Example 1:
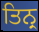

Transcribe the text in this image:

ਤਿਨ੍ਰ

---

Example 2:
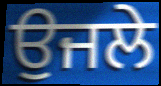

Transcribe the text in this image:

ਉਜਲੇ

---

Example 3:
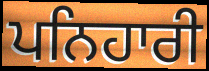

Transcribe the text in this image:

ਪਨਿਹਾਰੀ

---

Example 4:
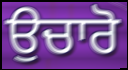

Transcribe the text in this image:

ਉਚਾਰੋ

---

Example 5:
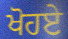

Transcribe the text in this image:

ਖੋਹਏ